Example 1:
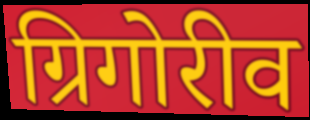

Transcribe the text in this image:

ग्रिगोरीव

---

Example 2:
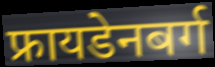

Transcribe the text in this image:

फ्रायडेनबर्ग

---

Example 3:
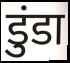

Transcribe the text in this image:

डुंडा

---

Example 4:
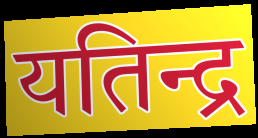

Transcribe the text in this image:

यतिन्द्र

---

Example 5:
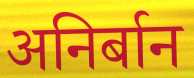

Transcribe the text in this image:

अनिर्बान